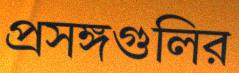
প্রসঙ্গগুলির